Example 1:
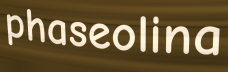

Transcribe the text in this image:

phaseolina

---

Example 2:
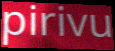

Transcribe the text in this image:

pirivu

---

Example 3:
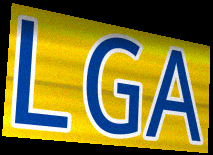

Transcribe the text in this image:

LGA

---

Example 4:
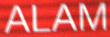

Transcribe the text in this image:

ALAM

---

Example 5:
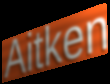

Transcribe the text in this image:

Aitken